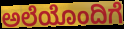
ಅಲೆಯೊಂದಿಗೆ